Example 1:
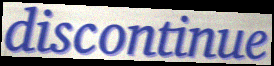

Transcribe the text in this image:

discontinue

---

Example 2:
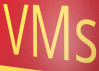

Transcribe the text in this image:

VMs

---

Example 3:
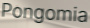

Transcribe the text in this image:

Pongomia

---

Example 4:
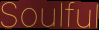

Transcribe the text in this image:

Soulful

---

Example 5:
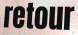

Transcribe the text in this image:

retour